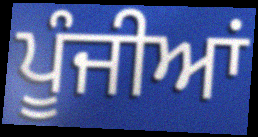
ਪੂੰਜੀਆਂ